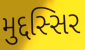
મુદ્દસ્સિર